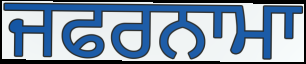
ਜਫਰਨਾਮਾ